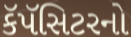
કૅપૅસિટરનો